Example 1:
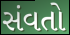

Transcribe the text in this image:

સંવતો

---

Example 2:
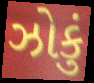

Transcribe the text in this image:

ઝોકું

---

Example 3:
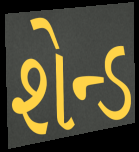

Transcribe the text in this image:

શેન્ડ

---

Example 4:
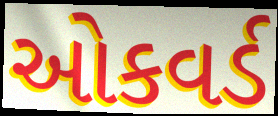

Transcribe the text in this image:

ઓકવર્ડ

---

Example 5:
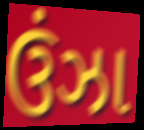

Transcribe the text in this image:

ઉંઝા